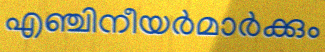
എഞ്ചിനീയർമാർക്കും